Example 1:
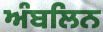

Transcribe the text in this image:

ਅੰਬਲਿਨ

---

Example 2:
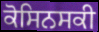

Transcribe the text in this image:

ਕੋਸਿਨਸਕੀ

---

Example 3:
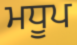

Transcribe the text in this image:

ਮਧੂਪ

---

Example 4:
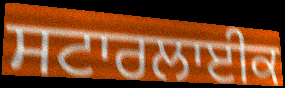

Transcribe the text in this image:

ਸਟਾਰਲਾਈਕ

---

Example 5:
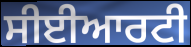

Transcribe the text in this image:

ਸੀਈਆਰਟੀ